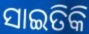
ସାଇତିକି